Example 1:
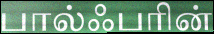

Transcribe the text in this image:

பால்ஃபரின்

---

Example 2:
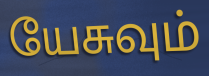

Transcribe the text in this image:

யேசுவும்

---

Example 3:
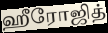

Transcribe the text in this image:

ஹீரோஜித்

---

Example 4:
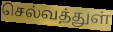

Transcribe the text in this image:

செல்வத்துள்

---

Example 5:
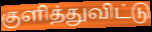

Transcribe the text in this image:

குளித்துவிட்டு